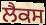
ਲੈਕਸ